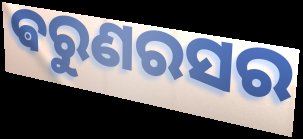
ଵରୁଣରସର